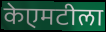
केएमटीला